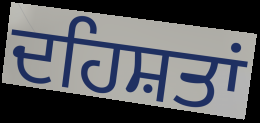
ਦਹਿਸ਼ਤਾਂ